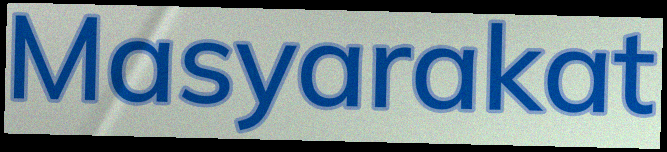
Masyarakat